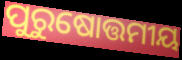
ପୁରୁଷୋତ୍ତମୀୟ